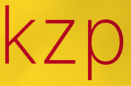
kzp